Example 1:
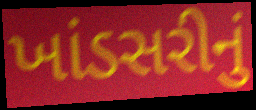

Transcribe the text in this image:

ખાંડસરીનું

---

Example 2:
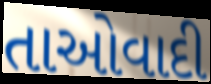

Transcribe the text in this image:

તાઓવાદી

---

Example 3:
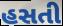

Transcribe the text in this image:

હસતી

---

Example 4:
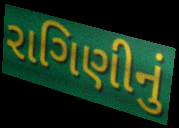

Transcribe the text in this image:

રાગિણીનું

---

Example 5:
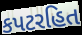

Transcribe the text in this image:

કપટરહિત